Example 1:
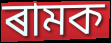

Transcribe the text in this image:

ৰামক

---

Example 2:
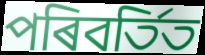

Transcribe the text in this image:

পৰিবৰ্তিত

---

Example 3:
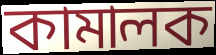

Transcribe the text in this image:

কামালক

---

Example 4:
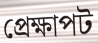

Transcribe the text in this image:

প্ৰেক্ষাপট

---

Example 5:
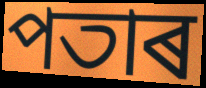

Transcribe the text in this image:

পতাৰ